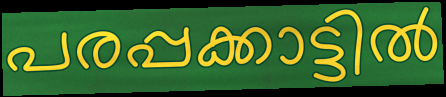
പരപ്പക്കാട്ടിൽ